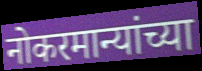
नोकरमान्यांच्या